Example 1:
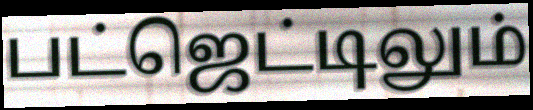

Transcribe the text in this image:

பட்ஜெட்டிலும்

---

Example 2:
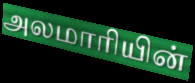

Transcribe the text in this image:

அலமாரியின்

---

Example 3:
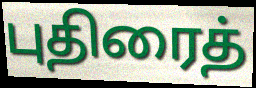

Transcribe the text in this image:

புதிரைத்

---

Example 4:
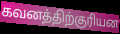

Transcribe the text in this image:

கவனத்திற்குரியன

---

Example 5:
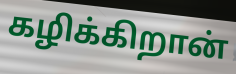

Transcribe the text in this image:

கழிக்கிறான்